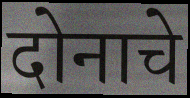
दोनाचे